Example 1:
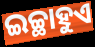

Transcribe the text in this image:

ଇଚ୍ଛାହୁଏ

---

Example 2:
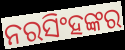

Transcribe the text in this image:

ନରସିଂହଙ୍କର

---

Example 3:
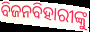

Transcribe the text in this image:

ବିଜନବିହାରୀଙ୍କୁ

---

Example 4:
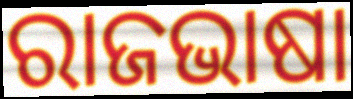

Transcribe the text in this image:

ରାଜଭାଷା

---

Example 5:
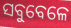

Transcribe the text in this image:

ସବୁବେଳେ